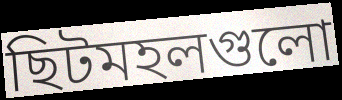
ছিটমহলগুলো